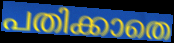
പതിക്കാതെ